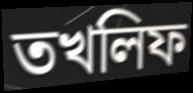
তখলিফ